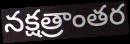
నక్షత్రాంతర